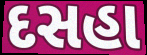
દસહા